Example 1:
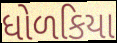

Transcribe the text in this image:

ધોળકિયા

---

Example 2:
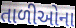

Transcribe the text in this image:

તાળીઓના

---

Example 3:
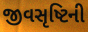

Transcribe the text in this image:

જીવસૃષ્ટિની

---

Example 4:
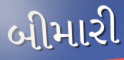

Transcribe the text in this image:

બીમારી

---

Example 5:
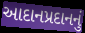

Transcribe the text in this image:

આદાનપ્રદાનનું